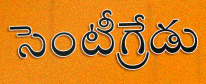
సెంటీగ్రేడు